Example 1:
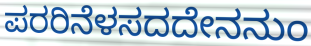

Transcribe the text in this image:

ಪರರಿನೆಳಸದದೇನನುಂ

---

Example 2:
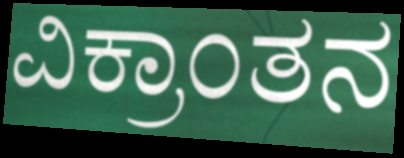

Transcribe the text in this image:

ವಿಕ್ರಾಂತನ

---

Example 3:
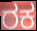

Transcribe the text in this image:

ರಕ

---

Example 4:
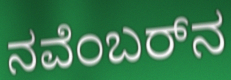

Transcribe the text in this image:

ನವೆಂಬರ್‌ನ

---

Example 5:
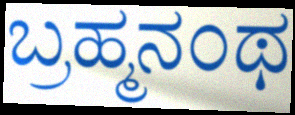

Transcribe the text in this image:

ಬ್ರಹ್ಮನಂಥ